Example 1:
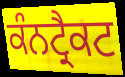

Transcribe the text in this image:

ਕੰਨਟ੍ਰੈਕਟ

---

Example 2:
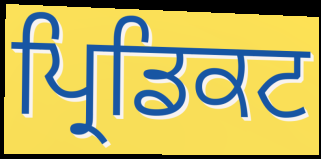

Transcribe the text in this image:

ਪ੍ਰਿਡਿਕਟ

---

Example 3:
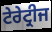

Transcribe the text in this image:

ਟੇਰੇਟ੍ਰੀਜ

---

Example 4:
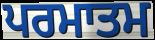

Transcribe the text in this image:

ਪਰਮਾਤਮ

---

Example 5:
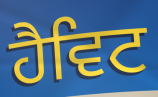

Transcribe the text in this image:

ਹੈਵਿਟ